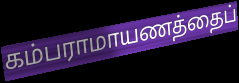
கம்பராமாயணத்தைப்